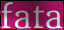
fata